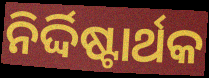
ନିର୍ଦ୍ଦିଷ୍ଟାର୍ଥକ